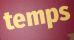
temps